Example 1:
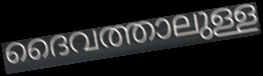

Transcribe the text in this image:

ദൈവത്താലുള്ള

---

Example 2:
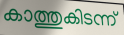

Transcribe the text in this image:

കാത്തുകിടന്ന്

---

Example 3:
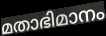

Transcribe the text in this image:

മതാഭിമാനം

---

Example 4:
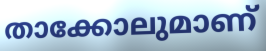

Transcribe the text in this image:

താക്കോലുമാണ്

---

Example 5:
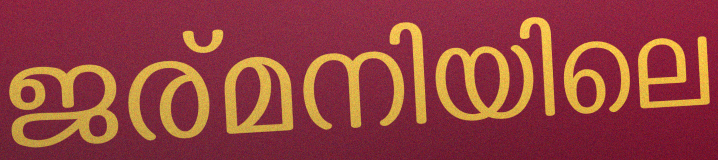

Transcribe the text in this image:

ജര്മനിയിലെ